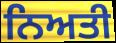
ਨਿਅਤੀ